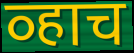
व्हाच